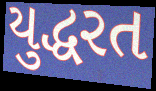
યુદ્ધરત